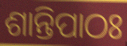
ଶାନ୍ତିପାଠଃ